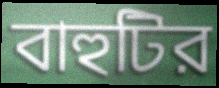
বাহুটির